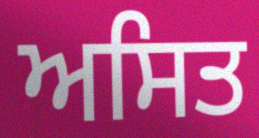
ਅਸਿਤ